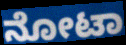
ನೋಟಾ